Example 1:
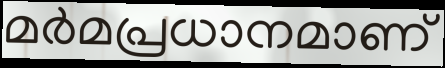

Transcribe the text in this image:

മർമപ്രധാനമാണ്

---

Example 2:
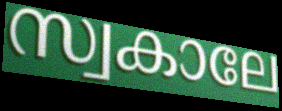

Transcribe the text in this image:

സ്വകാലേ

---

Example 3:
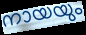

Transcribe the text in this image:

നായയും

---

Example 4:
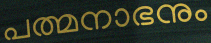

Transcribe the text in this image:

പത്മനാഭനും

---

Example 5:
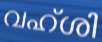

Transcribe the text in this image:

വഹ്ശി